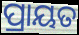
ପ୍ରାୟତ